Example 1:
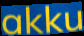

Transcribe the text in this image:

akku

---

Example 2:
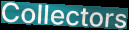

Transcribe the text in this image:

Collectors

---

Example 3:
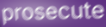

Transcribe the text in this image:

prosecute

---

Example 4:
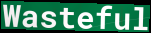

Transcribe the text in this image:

Wasteful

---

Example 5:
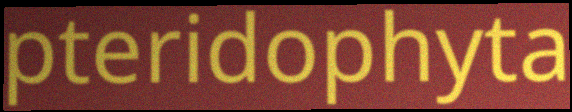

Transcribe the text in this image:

pteridophyta